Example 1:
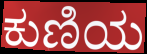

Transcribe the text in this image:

ಕುಣಿಯ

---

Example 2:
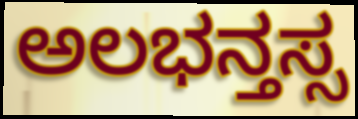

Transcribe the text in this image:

ಅಲಭನ್ತಸ್ಸ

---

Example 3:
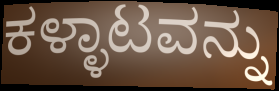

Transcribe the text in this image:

ಕಳ್ಳಾಟವನ್ನು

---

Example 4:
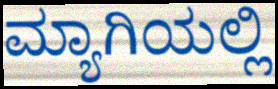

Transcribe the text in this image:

ಮ್ಯಾಗಿಯಲ್ಲಿ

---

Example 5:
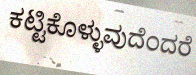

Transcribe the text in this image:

ಕಟ್ಟಿಕೊಳ್ಳುವುದೆಂದರೆ